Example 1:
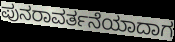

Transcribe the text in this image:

ಪುನರಾವರ್ತನೆಯಾದಾಗ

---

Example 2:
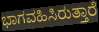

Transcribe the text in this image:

ಭಾಗವಹಿಸಿರುತ್ತಾರೆ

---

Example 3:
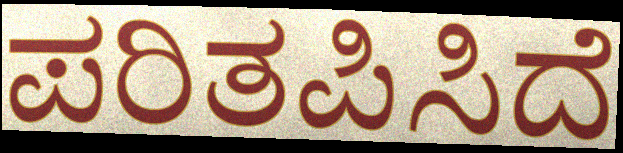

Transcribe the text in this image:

ಪರಿತಪಿಸಿದೆ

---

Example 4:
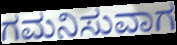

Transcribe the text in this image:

ಗಮನಿಸುವಾಗ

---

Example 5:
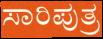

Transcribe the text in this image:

ಸಾರಿಪುತ್ರ